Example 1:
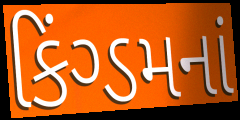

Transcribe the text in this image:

કિંગ્ડમનાં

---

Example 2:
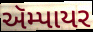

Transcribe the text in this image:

ઍમ્પાયર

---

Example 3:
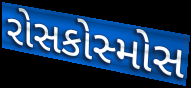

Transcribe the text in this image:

રોસકોસ્મોસ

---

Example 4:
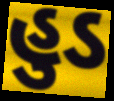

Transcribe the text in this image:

હુડ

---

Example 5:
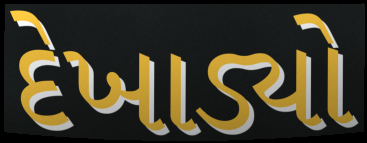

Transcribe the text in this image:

દેખાડ્યો